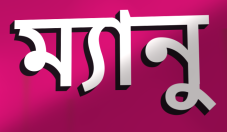
ম্যানু